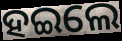
ହଇଲେ